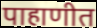
पाहाणीत